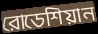
রোডেশিয়ান